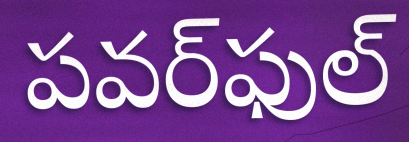
పవర్‌ఫుల్